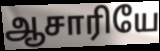
ஆசாரியே